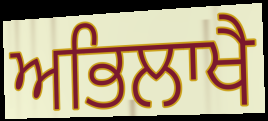
ਅਭਿਲਾਖੈ